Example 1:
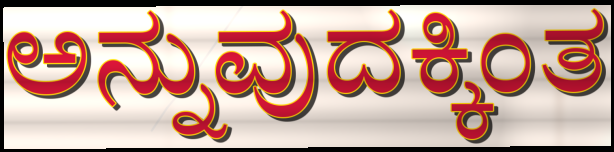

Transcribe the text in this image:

ಅನ್ನುವುದಕ್ಕಿಂತ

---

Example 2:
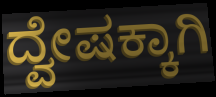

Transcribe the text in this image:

ದ್ವೇಷಕ್ಕಾಗಿ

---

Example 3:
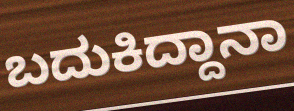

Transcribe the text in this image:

ಬದುಕಿದ್ದಾನಾ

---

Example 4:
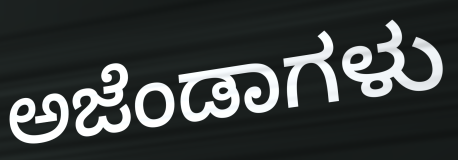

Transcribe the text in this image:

ಅಜೆಂಡಾಗಳು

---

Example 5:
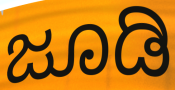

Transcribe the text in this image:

ಜೂಡಿ